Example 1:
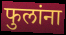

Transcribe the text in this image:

फुलांना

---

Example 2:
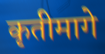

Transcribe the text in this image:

कृतीमागे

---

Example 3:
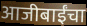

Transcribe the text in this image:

आजीबाईंचा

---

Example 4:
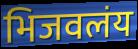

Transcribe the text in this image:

भिजवलंय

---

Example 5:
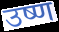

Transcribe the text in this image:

उष्ण